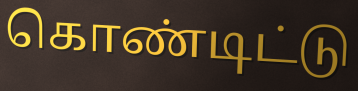
கொண்டிட்டு